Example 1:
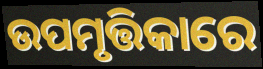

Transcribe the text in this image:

ଉପମୃତ୍ତିକାରେ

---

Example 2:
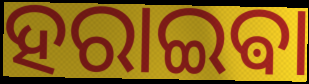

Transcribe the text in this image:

ହରାଇଵା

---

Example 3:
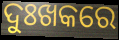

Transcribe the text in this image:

ଦୁଃଖକରେ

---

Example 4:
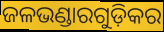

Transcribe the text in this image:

ଜଳଭଣ୍ଡାରଗୁଡ଼ିକର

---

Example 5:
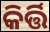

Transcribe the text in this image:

କିର୍ତ୍ତି